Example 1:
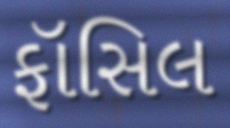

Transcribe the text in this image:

ફૉસિલ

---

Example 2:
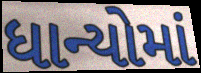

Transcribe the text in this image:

ધાન્યોમાં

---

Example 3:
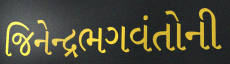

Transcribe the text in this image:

જિનેન્દ્રભગવંતોની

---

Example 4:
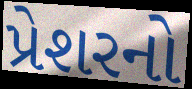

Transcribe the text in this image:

પ્રેશરનો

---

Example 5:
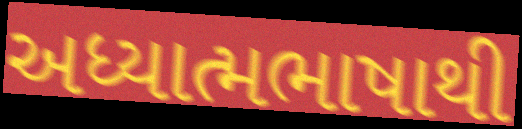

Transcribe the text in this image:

અધ્યાત્મભાષાથી